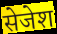
सेजेश